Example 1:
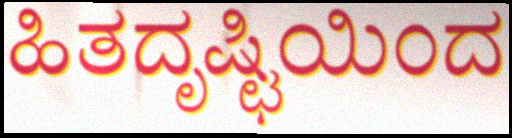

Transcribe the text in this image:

ಹಿತದೃಷ್ಟಿಯಿಂದ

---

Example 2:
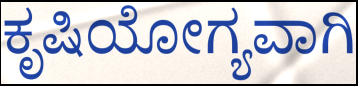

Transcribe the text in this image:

ಕೃಷಿಯೋಗ್ಯವಾಗಿ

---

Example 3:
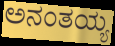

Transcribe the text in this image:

ಅನಂತಯ್ಯ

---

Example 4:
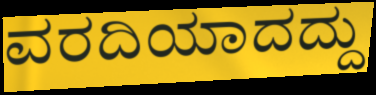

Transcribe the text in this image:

ವರದಿಯಾದದ್ದು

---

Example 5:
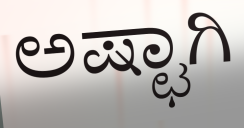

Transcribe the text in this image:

ಅಷ್ಟಾಗಿ